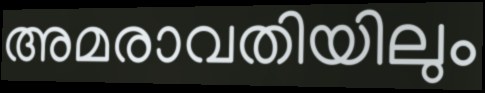
അമരാവതിയിലും